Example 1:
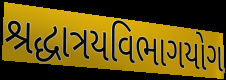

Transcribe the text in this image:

શ્રદ્ધાત્રયવિભાગયોગ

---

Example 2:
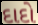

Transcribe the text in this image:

દાદો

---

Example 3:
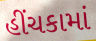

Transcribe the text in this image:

હીંચકામાં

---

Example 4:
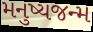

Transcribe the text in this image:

મનુષ્યજન્મ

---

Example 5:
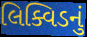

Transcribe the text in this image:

લિક્વિડનું